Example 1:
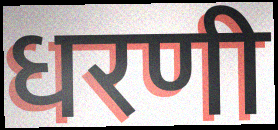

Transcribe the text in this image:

धरणी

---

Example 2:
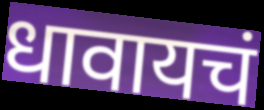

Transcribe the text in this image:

धावायचं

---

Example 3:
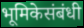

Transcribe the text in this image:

भूमिकेसंबंधी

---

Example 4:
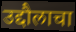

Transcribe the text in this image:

उद्दौलाचा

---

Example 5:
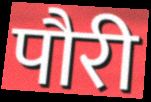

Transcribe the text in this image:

पौरी